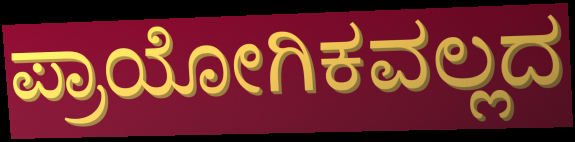
ಪ್ರಾಯೋಗಿಕವಲ್ಲದ